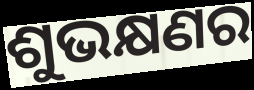
ଶୁଭକ୍ଷଣର